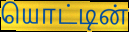
யொட்டின்